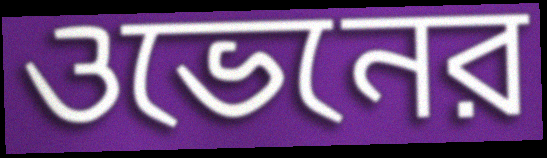
ওভেনের